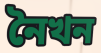
নৈখন